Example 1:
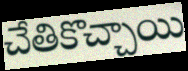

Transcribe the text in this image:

చేతికొచ్చాయి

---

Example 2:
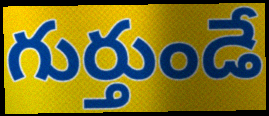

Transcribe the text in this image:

గుర్తుండే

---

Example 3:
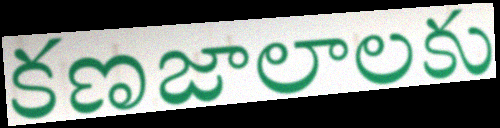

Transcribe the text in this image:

కణజాలాలకు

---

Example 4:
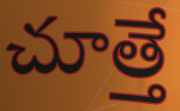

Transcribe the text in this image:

చూత్తే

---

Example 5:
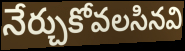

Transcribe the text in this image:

నేర్చుకోవలసినవి